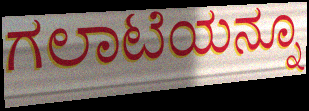
ಗಲಾಟೆಯನ್ನೂ